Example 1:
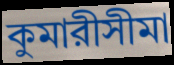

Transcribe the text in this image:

কুমারীসীমা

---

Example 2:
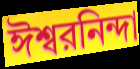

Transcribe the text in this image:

ঈশ্বরনিন্দা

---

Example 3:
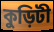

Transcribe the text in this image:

কুড়িটী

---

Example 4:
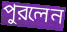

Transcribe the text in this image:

পুরলেন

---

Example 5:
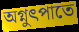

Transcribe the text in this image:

অগ্নুৎপাতে